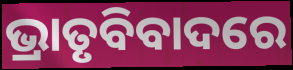
ଭ୍ରାତୃବିବାଦରେ